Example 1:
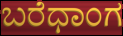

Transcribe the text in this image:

ಬರೆಧಾಂಗ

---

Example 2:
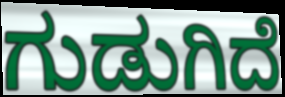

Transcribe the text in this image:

ಗುಡುಗಿದೆ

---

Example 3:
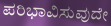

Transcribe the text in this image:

ಪರಿಭಾವಿಸುವುದೇ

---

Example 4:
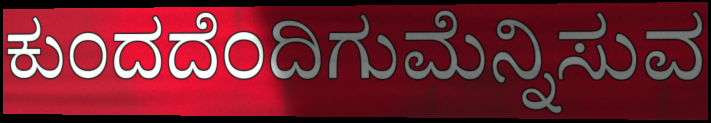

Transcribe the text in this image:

ಕುಂದದೆಂದಿಗುಮೆನ್ನಿಸುವ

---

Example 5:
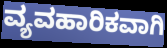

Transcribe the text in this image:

ವ್ಯವಹಾರಿಕವಾಗಿ